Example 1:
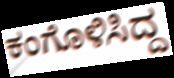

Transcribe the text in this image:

ಕಂಗೊಳಿಸಿದ್ದ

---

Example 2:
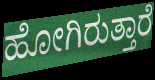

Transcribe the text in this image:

ಹೋಗಿರುತ್ತಾರೆ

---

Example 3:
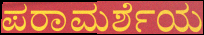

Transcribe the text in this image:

ಪರಾಮರ್ಶೆಯ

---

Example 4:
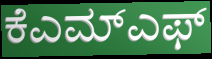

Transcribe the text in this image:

ಕೆಎಮ್ಎಫ್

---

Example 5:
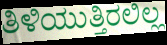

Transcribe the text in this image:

ತಿಳಿಯುತ್ತಿರಲಿಲ್ಲ